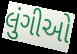
લુંગીઓ